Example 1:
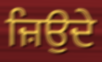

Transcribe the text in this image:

ਜ਼ਿਉਦੇ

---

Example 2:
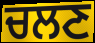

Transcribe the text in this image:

ਚਲਣ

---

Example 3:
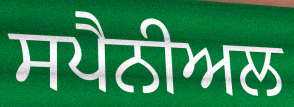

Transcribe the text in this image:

ਸਪੈਨੀਅਲ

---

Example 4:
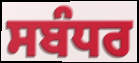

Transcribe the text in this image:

ਸਬੰਧਰ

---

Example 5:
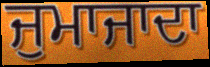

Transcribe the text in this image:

ਜੁਮਾਜਾਦਾ